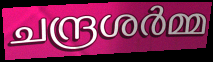
ചന്ദ്രശർമ്മ